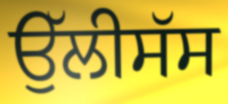
ਉੱਲੀਸੱਸ